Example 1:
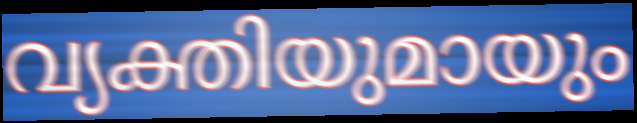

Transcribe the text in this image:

വ്യക്തിയുമായും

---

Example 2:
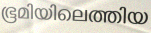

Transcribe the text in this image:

ഭൂമിയിലെത്തിയ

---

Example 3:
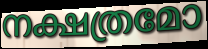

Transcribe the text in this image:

നക്ഷത്രമോ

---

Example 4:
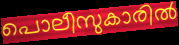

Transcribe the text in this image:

പൊലീസുകാരിൽ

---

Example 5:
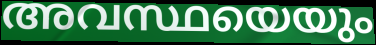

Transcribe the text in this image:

അവസ്ഥയെയും